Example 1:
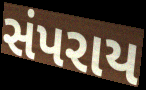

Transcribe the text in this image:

સંપરાય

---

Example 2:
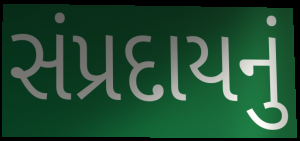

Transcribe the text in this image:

સંપ્રદાયનું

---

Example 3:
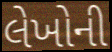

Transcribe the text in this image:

લેખોની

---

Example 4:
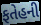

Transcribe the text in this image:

ફતેહની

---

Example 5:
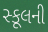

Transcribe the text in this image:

સ્કૂલની